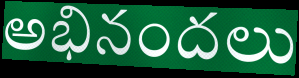
అభినందలు